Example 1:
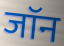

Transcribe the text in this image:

जॉन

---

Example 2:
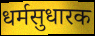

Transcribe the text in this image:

धर्मसुधारक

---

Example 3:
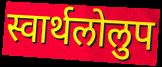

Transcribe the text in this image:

स्वार्थलोलुप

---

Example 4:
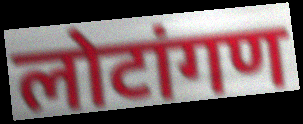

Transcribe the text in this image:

लोटांगण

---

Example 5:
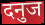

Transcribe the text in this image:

दनुज